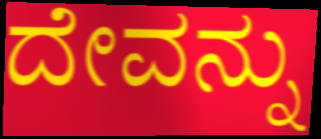
ದೇವನ್ನು